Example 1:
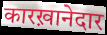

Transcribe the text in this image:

कारख़ानेदार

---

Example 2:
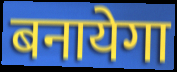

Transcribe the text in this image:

बनायेगा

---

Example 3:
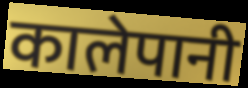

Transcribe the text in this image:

कालेपानी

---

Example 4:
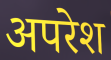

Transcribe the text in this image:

अपरेश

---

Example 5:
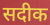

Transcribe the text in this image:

सदीक